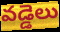
వడ్డెలు